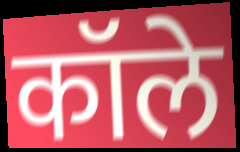
कॉले